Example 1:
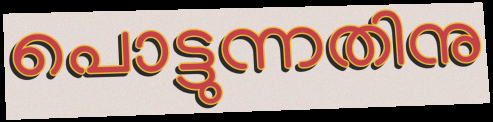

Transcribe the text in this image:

പൊട്ടുന്നതിനു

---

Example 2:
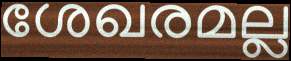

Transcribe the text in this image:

ശേഖരമല്ല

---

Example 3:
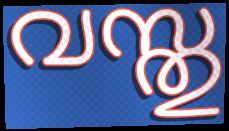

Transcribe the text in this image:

വസ്തു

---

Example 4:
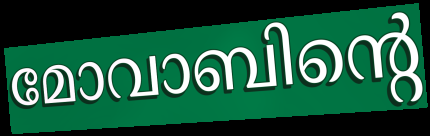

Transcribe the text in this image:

മോവാബിന്റെ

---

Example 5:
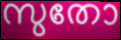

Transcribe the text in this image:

സുതോ